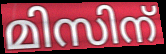
മിസിന്